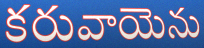
కరువాయెను